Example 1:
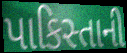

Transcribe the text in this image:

પાકિસ્તાની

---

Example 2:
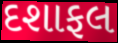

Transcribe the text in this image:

દશાફલ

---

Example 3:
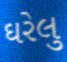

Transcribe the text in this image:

ઘરેલુ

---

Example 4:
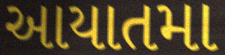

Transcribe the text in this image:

આયાતમા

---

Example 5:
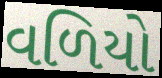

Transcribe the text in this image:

વળિયો